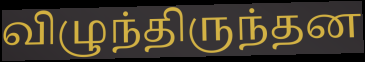
விழுந்திருந்தன